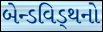
બેન્ડવિડ્થનો